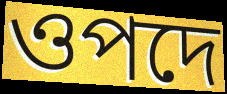
ওপদে